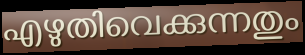
എഴുതിവെക്കുന്നതും